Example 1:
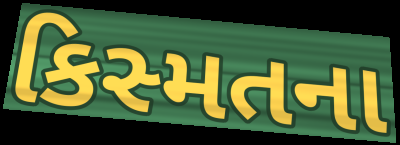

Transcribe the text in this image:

કિસ્મતના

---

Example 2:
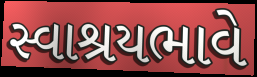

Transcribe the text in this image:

સ્વાશ્રયભાવે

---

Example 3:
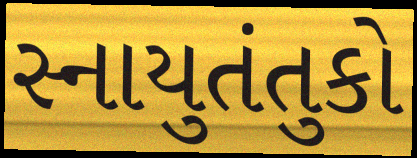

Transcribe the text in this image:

સ્નાયુતંતુકો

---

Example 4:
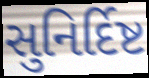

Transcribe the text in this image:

સુનિર્દિષ્ટ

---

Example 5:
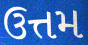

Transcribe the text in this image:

ઉત્તમ